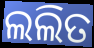
ଲଲିତ